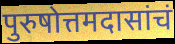
पुरुषोत्तमदासांचं